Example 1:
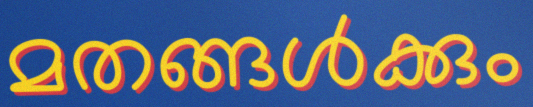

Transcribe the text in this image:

മതങ്ങൾക്കും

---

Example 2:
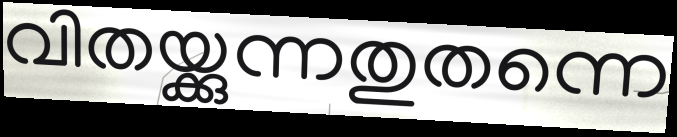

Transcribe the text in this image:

വിതയ്ക്കുന്നതുതന്നെ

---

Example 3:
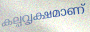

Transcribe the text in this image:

കല്പവൃക്ഷമാണ്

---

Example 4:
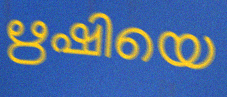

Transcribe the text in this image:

ഋഷിയെ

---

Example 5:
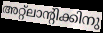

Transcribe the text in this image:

അറ്റ്ലാന്റിക്കിനു